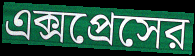
এক্সপ্রেসের